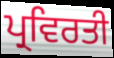
ਪ੍ਰਵਿਰਤੀ